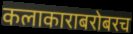
कलाकाराबरोबरच